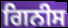
ਗਿਨੀਸ